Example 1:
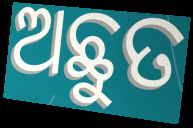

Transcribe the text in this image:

ଅଛୁତ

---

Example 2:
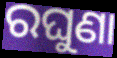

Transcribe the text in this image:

ରଘୁଣା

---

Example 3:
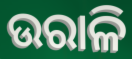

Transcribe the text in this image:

ଉରାଳି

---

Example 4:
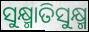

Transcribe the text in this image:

ସୁକ୍ଷ୍ମାତିସୁକ୍ଷ୍ମ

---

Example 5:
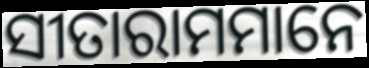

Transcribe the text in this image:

ସୀତାରାମମାନେ